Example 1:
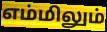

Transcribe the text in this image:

எம்மிலும்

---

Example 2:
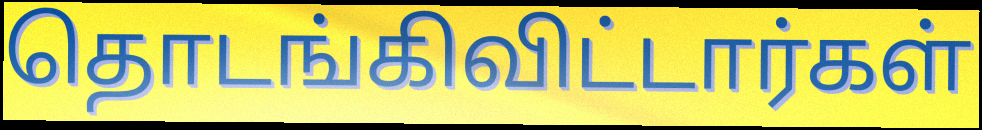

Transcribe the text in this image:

தொடங்கிவிட்டார்கள்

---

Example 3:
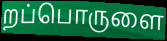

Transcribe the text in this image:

றப்பொருளை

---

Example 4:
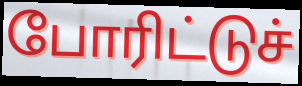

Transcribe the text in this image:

போரிட்டுச்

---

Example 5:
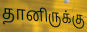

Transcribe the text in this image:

தானிருக்கு